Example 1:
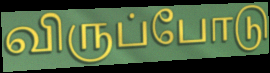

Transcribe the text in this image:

விருப்போடு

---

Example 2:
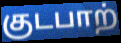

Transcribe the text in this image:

குடபாற்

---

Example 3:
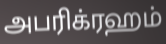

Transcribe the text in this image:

அபரிக்ரஹம்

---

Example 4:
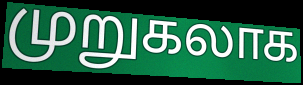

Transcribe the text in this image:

முறுகலாக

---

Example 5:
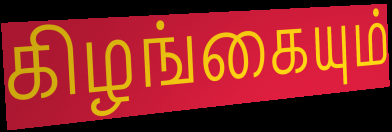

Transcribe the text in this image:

கிழங்கையும்